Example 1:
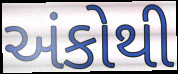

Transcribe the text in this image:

અંકોથી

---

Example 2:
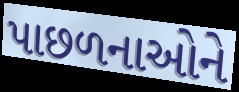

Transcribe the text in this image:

પાછળનાઓને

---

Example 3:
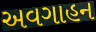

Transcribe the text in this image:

અવગાહન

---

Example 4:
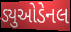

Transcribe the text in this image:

ડ્યુઓડેનલ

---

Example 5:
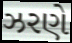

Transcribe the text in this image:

ઝરણે